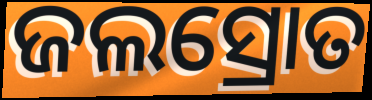
ଜଲସ୍ରୋତ